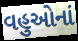
વહુઓનાં